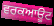
ਵਰਕਆਊਟ